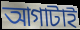
আগাটাই